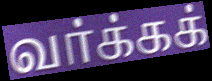
வர்க்கக்